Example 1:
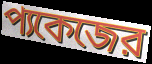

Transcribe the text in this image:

প্যকেজের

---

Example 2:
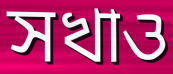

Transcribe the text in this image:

সখাও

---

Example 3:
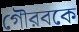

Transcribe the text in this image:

গৌরবকে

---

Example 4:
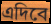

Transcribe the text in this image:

এদিবে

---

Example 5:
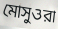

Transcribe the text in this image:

মোসুওরা